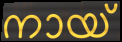
നായ്